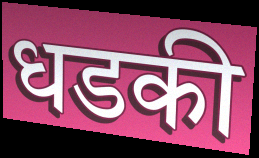
धडकी